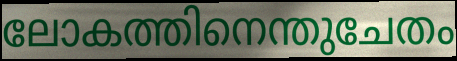
ലോകത്തിനെന്തുചേതം